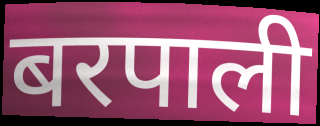
बरपाली